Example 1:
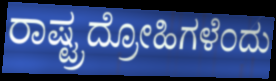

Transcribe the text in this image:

ರಾಷ್ಟ್ರದ್ರೋಹಿಗಳೆಂದು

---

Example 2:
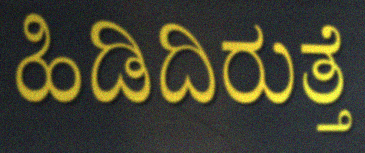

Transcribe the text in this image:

ಹಿಡಿದಿರುತ್ತೆ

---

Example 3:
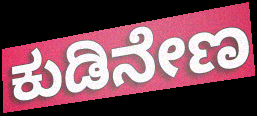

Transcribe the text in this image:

ಕುಡಿನೇಣ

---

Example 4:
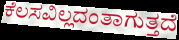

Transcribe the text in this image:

ಕೆಲಸವಿಲ್ಲದಂತಾಗುತ್ತದೆ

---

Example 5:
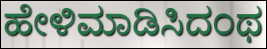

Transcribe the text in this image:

ಹೇಳಿಮಾಡಿಸಿದಂಥ